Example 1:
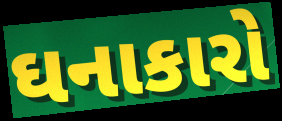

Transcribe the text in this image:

ઘનાકારો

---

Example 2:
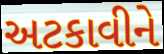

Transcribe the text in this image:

અટકાવીને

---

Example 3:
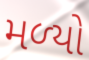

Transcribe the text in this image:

મળ્‍યો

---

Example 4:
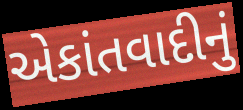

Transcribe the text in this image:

એકાંતવાદીનું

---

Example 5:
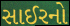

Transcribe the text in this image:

સાઈરનો